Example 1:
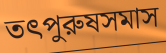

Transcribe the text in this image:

তৎপুরুষসমাস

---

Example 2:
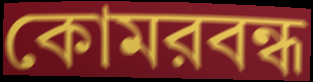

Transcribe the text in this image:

কোমরবন্ধ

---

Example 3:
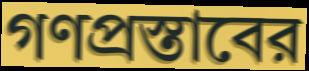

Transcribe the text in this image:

গণপ্রস্তাবের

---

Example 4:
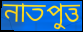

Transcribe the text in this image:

নাতপুত্ত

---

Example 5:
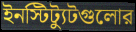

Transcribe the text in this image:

ইনস্টিট্যুটগুলোর